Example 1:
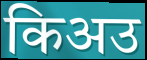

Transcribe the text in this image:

किअउ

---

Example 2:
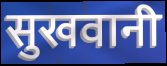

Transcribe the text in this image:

सुखवानी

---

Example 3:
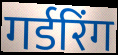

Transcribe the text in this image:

गर्डरिंग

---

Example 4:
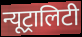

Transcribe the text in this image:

न्यूट्रालिटी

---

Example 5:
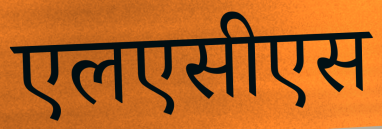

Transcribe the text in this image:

एलएसीएस